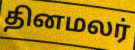
தினமலர்